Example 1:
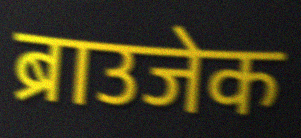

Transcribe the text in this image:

ब्राउजेक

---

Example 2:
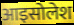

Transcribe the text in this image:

आइसोलेश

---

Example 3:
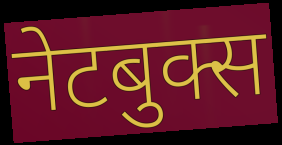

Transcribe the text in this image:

नेटबुक्स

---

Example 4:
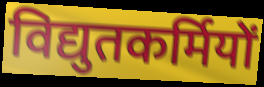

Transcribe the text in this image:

विद्युतकर्मियों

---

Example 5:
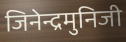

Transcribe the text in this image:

जिनेन्द्रमुनिजी